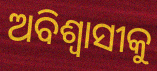
ଅବିଶ୍ୱାସୀକୁ